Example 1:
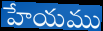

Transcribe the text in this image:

హేయము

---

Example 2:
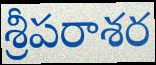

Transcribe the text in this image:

శ్రీపరాశర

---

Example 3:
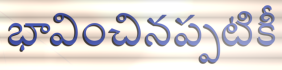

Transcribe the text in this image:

భావించినప్పటికీ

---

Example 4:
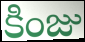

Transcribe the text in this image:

కింజు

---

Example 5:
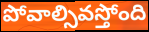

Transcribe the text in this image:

పోవాల్సివస్తోంది